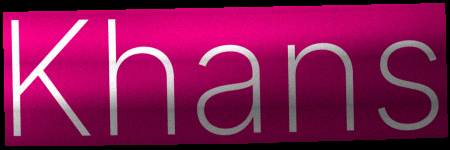
Khans